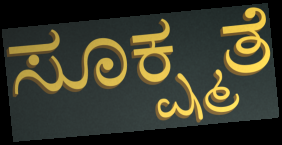
ಸೂಕ್ಷ್ಮತೆ